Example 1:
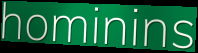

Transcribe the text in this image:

hominins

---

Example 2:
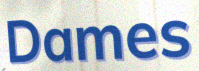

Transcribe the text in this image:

Dames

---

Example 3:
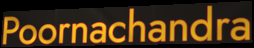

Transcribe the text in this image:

Poornachandra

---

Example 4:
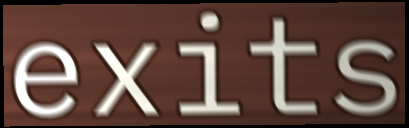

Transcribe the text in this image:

exits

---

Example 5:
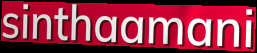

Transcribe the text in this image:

sinthaamani